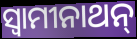
ସ୍ୱାମୀନାଥନ୍